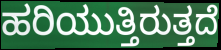
ಹರಿಯುತ್ತಿರುತ್ತದೆ